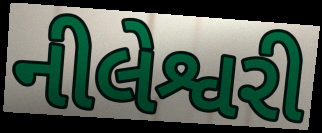
નીલેશ્વરી